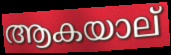
ആകയാല്